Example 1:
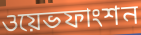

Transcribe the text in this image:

ওয়েভফাংশন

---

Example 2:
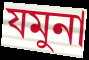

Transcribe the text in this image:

যমুনা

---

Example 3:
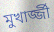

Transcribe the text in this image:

মুখার্জ্জী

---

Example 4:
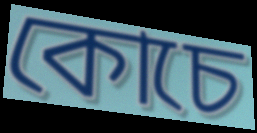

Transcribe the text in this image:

কোচে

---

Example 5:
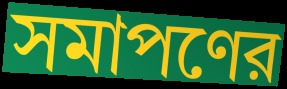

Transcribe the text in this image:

সমাপণের